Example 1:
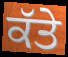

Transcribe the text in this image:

ਕੱਤੇ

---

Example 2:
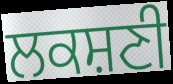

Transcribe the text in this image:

ਲਕਸ਼ਣੀ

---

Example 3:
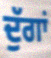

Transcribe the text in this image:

ਦੁੱਗਾਂ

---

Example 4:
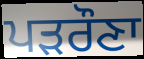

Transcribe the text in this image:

ਪੜਰੌਣਾ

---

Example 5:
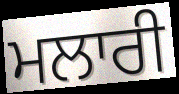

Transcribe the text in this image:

ਮਲਾਰੀ